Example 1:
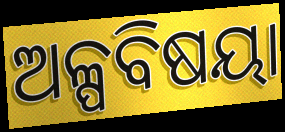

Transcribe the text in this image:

ଅଳ୍ପବିଷୟା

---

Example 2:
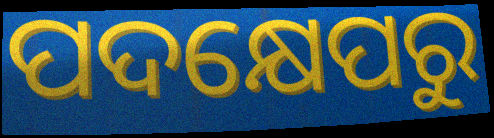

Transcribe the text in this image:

ପଦକ୍ଷେପରୁ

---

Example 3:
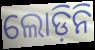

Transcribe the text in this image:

ଲୋଡ଼ିନି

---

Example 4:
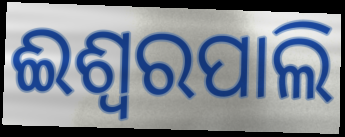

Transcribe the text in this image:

ଈଶ୍ୱରପାଲି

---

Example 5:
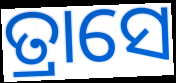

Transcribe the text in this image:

ତ୍ରାସେ